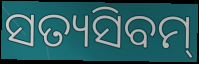
ସତ୍ୟସିବମ୍